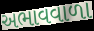
અભાવવાળા